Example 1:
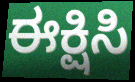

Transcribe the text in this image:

ಈಕ್ಷಿಸಿ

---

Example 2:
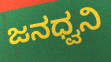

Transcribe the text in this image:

ಜನಧ್ವನಿ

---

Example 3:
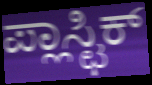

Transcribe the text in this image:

ಪ್ಲಾಸ್ಟಿಕ್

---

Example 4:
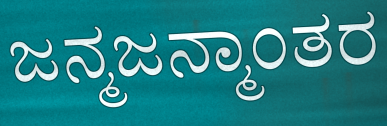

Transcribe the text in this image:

ಜನ್ಮಜನ್ಮಾಂತರ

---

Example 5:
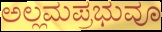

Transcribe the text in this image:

ಅಲ್ಲಮಪ್ರಭುವೂ